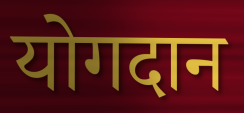
योगदान